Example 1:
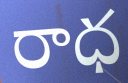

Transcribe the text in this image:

రాధ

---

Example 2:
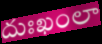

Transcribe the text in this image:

దుఃఖంలా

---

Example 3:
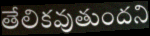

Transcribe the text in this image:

తేలికవుతుందని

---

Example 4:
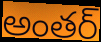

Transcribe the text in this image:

అంతర్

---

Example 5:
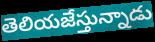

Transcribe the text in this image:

తెలియజేస్తున్నాడు